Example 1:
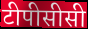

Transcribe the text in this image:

टीपीसीसी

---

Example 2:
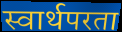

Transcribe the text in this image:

स्वार्थपरता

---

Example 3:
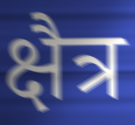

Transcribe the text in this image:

क्षैत्र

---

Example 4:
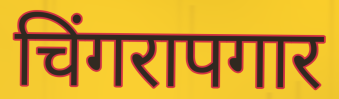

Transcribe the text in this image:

चिंगरापगार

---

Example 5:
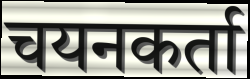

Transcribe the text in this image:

चयनकर्ता